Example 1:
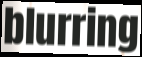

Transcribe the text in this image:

blurring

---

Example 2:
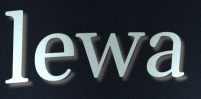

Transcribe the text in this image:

lewa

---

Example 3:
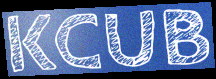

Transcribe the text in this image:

KCUB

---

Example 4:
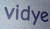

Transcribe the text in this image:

vidye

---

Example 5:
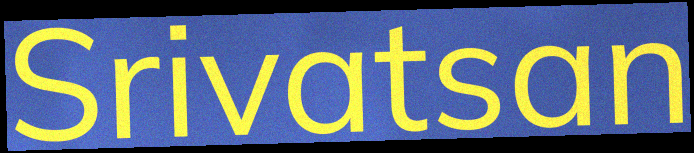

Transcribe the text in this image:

Srivatsan